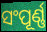
ସଂପୂର୍ଣ୍ଣ